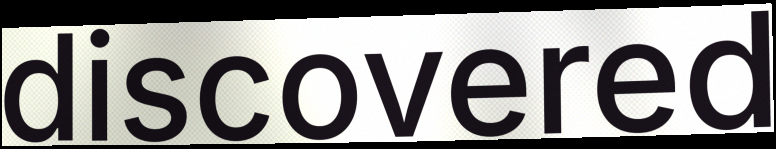
discovered